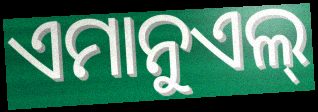
ଏମାନୁଏଲ୍